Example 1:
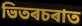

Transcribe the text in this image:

ভিতৰচৰাত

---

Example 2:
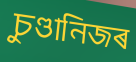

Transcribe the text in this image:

চুণ্ডানিজৰ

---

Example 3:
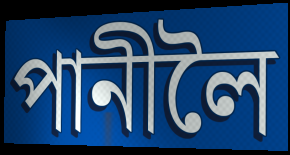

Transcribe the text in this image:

পানীলৈ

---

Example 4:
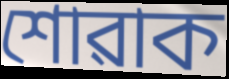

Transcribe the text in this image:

শোৱাক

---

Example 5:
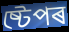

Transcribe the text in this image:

ষ্টেপৰ